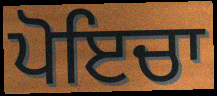
ਪੋਇਚਾ